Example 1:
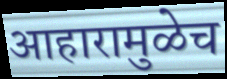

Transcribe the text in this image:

आहारामुळेच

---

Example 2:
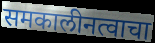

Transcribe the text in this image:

समकालीनत्वाचा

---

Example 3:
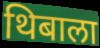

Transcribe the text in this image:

थिबाला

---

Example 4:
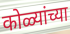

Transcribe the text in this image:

कोळ्यांच्या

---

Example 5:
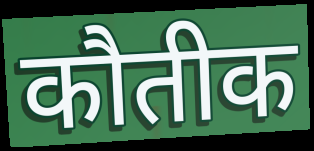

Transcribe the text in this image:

कौतीक